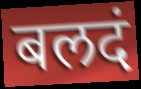
बलदं